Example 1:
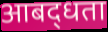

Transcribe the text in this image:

आबद्धता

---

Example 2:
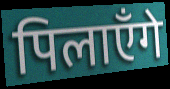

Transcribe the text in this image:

पिलाएँगे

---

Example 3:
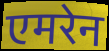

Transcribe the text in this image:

एमरेन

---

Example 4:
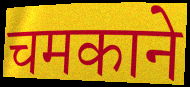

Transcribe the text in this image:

चमकाने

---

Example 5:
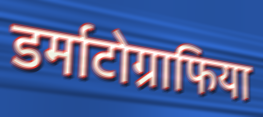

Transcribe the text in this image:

डर्माटोग्राफिया